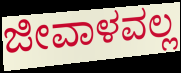
ಜೀವಾಳವಲ್ಲ